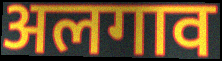
अलगाव